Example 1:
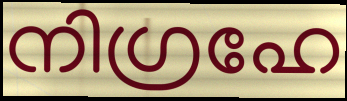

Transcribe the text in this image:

നിഗ്രഹേ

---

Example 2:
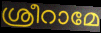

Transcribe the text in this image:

ശ്രീറാമേ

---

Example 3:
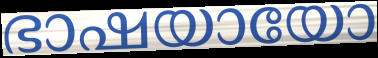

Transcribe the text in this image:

ഭാഷയായോ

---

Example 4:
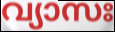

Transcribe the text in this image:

വ്യാസഃ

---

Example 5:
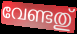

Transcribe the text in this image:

വേണ്ടതു്